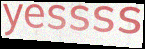
yessss